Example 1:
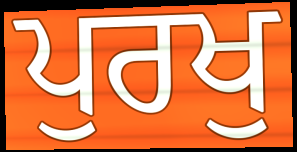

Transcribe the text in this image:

ਪੁਰਖੁ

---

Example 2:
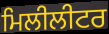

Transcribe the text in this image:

ਮਿਲੀਲੀਟਰ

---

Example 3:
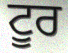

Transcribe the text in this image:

ਟੂਰ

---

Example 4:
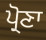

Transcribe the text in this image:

ਪ੍ਰੋਣਾ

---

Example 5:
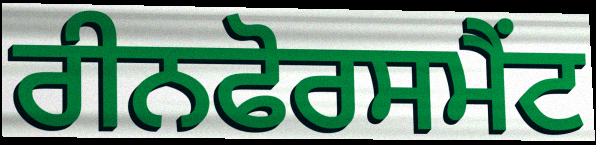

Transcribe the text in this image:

ਰੀਨਫੋਰਸਮੈਂਟ